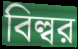
বিল্বর